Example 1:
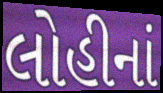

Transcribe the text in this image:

લોહીનાં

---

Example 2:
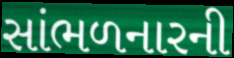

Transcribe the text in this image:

સાંભળનારની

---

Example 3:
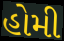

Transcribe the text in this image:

હોમી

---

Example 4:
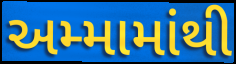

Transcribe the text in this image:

અમ્મામાંથી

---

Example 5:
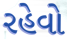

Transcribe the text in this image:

રહેવો